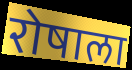
रोषाला